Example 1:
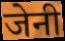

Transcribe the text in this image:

जेनी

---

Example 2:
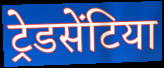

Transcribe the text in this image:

ट्रेडसेंटिया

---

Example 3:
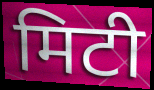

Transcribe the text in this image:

मिटी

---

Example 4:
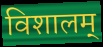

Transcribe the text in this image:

विशालम्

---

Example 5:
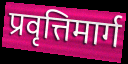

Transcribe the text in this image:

प्रवृत्तिमार्ग